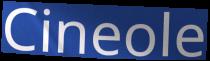
Cineole